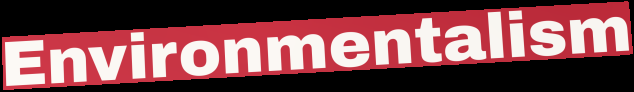
Environmentalism